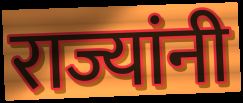
राज्यांनी